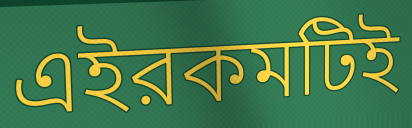
এইরকমটিই